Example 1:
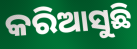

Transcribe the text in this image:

କରିଆସୁଛି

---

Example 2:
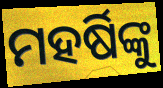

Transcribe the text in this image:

ମହର୍ଷିଙ୍କୁ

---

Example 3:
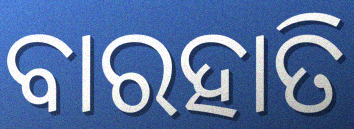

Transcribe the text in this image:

ବାରହାତି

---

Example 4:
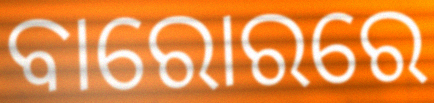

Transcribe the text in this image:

ବାରୋରରେ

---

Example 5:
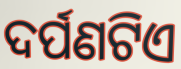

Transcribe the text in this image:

ଦର୍ପଣଟିଏ